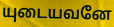
யுடையவனே